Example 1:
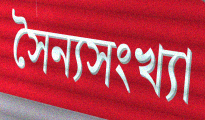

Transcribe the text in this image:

সৈন্যসংখ্যা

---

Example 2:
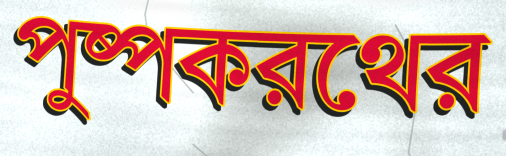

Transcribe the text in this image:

পুষ্পকরথের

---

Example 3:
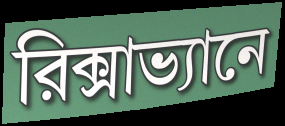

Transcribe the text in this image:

রিক্সাভ্যানে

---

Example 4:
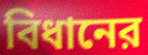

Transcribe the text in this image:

বিধানের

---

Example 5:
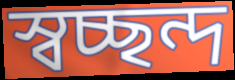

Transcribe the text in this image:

স্বচ্ছন্দ